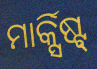
ମାର୍କ୍ସିଷ୍ଟ୍